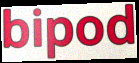
bipod